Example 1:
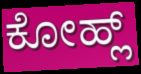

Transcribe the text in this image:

ಕೋಹ್ಲ್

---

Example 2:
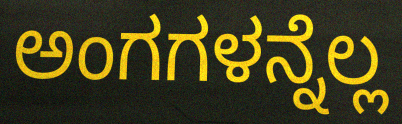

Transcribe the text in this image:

ಅಂಗಗಳನ್ನೆಲ್ಲ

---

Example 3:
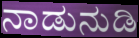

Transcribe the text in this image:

ನಾಡುನುಡಿ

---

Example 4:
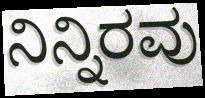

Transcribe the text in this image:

ನಿನ್ನಿರವು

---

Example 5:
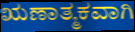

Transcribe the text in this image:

ಋಣಾತ್ಮಕವಾಗಿ